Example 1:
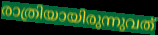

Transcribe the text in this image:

രാത്രിയായിരുന്നുവത്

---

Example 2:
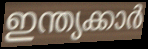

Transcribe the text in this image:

ഇന്ത്യക്കാർ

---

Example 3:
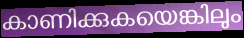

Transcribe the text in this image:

കാണിക്കുകയെങ്കിലും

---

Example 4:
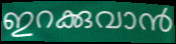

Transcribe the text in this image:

ഇറക്കുവാൻ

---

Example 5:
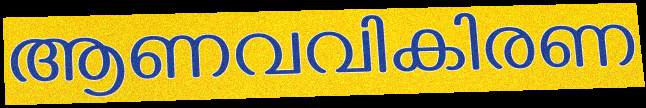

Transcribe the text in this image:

ആണവവികിരണ